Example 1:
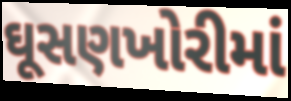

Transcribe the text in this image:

ઘૂસણખોરીમાં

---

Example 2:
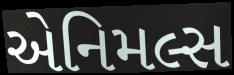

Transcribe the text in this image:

એનિમલ્સ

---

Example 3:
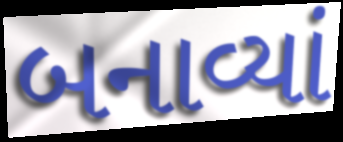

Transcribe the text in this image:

બનાવ્યાં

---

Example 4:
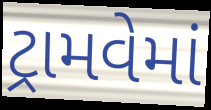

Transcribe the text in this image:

ટ્રામવેમાં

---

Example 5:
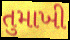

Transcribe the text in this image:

તુમાખી